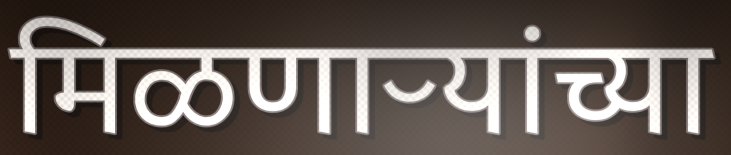
मिळणाऱ्यांच्या